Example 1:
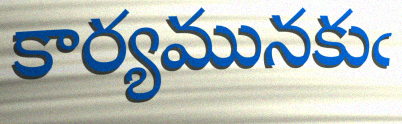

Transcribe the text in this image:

కార్యమునకుఁ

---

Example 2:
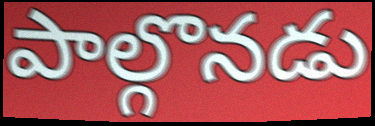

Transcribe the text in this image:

పాల్గొనడు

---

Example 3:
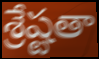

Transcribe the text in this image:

శ్రేష్టతా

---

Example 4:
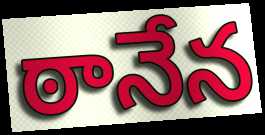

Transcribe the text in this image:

ఠానేన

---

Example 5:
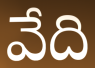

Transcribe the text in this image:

వేది